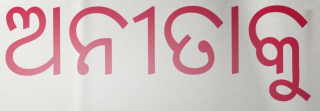
ଅନୀତାକୁ